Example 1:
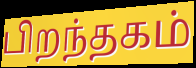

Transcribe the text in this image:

பிறந்தகம்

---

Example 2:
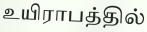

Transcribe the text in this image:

உயிராபத்தில்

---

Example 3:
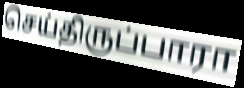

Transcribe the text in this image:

செய்திருப்பாரா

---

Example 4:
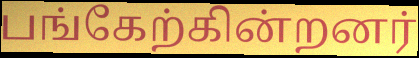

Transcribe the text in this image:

பங்கேற்கின்றனர்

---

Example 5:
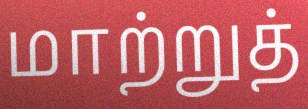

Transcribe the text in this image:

மாற்றுத்